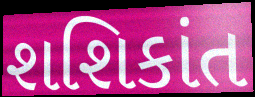
શશિકાંત